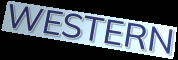
WESTERN